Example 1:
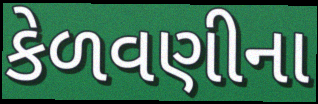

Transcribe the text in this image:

કેળવણીના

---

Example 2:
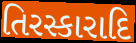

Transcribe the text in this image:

તિરસ્કારાદિ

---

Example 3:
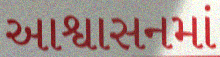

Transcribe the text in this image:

આશ્વાસનમાં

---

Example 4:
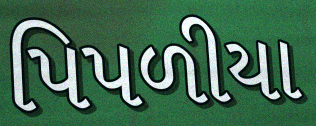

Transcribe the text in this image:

પિપળીયા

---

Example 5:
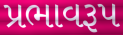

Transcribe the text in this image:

પ્રભાવરૂપ